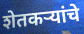
शेतकऱ्यांचे